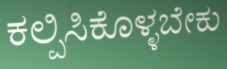
ಕಲ್ಪಿಸಿಕೊಳ್ಳಬೇಕು